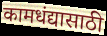
कामधंद्यासाठी